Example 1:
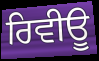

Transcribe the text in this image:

ਰਿਵੀਊ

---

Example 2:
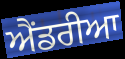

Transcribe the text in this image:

ਐਂਡਰੀਆ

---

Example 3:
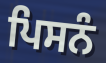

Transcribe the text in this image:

ਪਿਸਨੰ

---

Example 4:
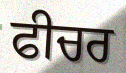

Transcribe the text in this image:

ਫੀਚਰ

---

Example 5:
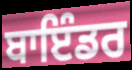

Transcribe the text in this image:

ਬਾਇੰਡਰ